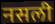
नसली